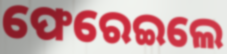
ଫେରେଇଲେ